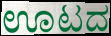
ಊಟದ